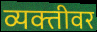
व्यक्तीवर